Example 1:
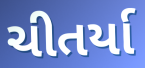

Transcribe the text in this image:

ચીતર્યા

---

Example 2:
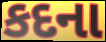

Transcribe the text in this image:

કદના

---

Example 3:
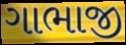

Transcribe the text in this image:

ગાભાજી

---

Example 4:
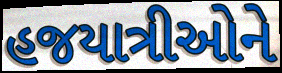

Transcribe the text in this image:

હજયાત્રીઓને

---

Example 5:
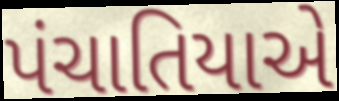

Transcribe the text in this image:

પંચાતિયાએ